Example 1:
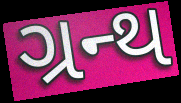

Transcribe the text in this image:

ગ્રન્થ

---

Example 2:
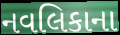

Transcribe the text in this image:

નવલિકાના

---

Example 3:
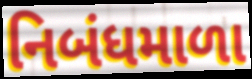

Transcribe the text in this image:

નિબંધમાળા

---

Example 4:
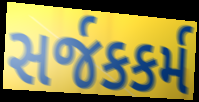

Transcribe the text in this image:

સર્જકકર્મ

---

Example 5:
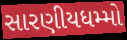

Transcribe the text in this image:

સારણીયધમ્મો